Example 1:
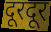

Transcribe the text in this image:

दूरदूर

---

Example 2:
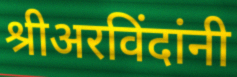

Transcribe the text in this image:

श्रीअरविंदांनी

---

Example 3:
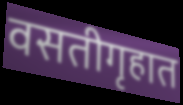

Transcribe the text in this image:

वसतीगृहात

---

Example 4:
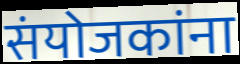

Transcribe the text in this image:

संयोजकांना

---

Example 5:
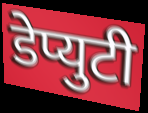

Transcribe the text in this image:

डेप्युटी